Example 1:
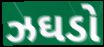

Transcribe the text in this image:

ઝઘડો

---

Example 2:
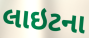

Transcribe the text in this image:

લાઇટના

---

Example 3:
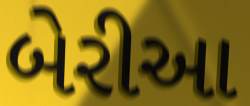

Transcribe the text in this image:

બેરીઆ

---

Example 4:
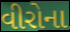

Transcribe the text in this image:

વીરોના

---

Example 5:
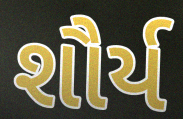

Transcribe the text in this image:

શૌર્ય